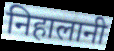
निहालानी